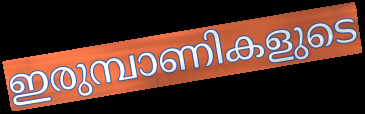
ഇരുമ്പാണികളുടെ